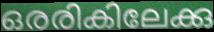
ഒരരികിലേക്കു